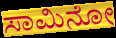
ಸಾಮಿನೋ